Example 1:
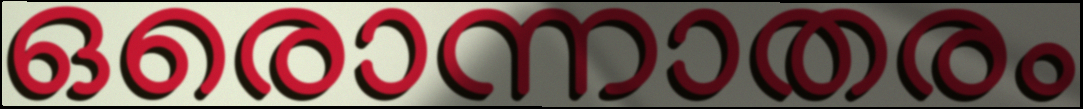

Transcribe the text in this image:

ഒരൊന്നാതരം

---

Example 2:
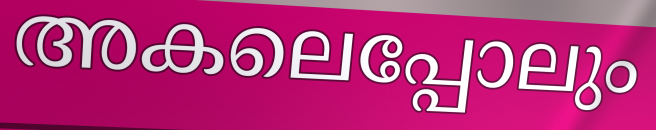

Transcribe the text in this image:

അകലെപ്പോലും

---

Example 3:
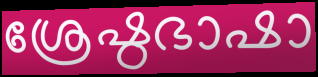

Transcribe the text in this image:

ശ്രേഷ്ഠഭാഷാ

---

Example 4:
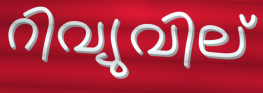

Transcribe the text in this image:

റിവ്യുവില്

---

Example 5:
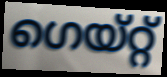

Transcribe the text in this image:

ഗെയ്റ്റ്